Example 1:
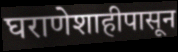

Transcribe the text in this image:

घराणेशाहीपासून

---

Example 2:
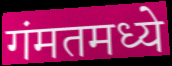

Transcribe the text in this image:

गंमतमध्ये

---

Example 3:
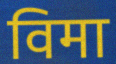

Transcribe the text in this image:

विमा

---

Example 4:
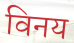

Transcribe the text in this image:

विनय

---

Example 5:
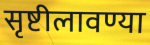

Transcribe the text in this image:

सृष्टीलावण्या